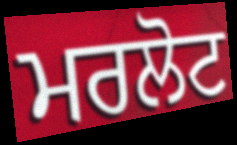
ਮਰਲੋਟ